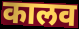
कालव